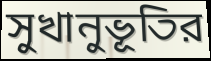
সুখানুভূতির